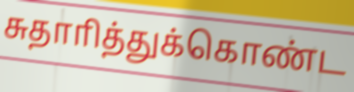
சுதாரித்துக்கொண்ட